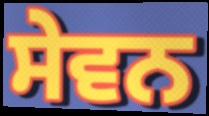
ਸੇਵਨ